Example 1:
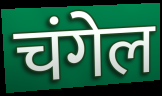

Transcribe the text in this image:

चंगेल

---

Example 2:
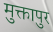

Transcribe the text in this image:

मुक्तापुर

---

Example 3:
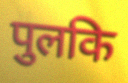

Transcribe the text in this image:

पुलकि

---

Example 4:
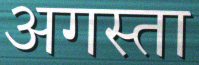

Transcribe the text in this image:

अगस्ता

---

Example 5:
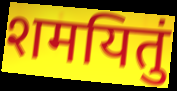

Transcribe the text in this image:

शमयितुं